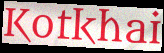
Kotkhai